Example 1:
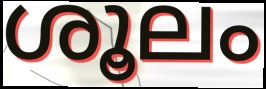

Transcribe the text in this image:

ശൂലം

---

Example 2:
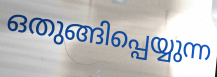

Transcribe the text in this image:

ഒതുങ്ങിപ്പെയ്യുന്ന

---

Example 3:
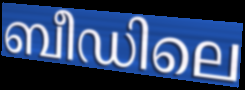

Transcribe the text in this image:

ബീഡിലെ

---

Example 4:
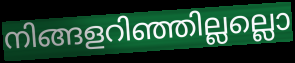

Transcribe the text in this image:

നിങ്ങളറിഞ്ഞില്ലല്ലൊ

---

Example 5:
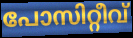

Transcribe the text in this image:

പോസിറ്റീവ്